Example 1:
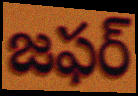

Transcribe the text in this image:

జఫర్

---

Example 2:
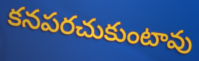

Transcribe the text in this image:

కనపరచుకుంటావు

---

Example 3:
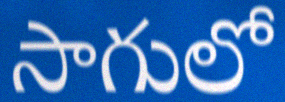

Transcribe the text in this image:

సాగులో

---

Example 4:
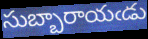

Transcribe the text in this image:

సుబ్బారాయఁడు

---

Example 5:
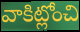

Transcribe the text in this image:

వాకిట్లోంచి